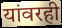
यांवरही